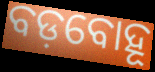
ବଡ଼ବୋହୂ